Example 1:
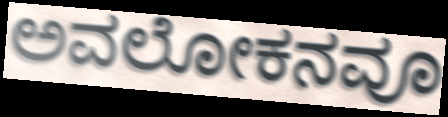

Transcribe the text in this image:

ಅವಲೋಕನವೂ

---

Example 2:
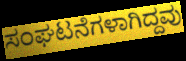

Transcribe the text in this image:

ಸಂಘಟನೆಗಳಾಗಿದ್ದವು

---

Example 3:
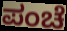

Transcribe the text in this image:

ಪಂಚೆ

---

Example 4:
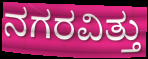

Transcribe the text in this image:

ನಗರವಿತ್ತು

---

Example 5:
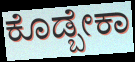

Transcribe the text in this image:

ಕೊಡ್ಬೇಕಾ